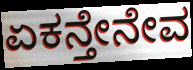
ಏಕನ್ತೇನೇವ